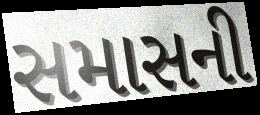
સમાસની